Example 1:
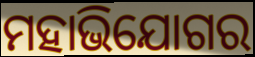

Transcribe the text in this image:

ମହାଭିଯୋଗର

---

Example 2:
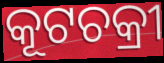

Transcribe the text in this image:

କୂଟଚକ୍ରୀ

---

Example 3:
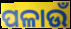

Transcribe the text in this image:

ପଳାଉଁ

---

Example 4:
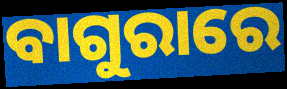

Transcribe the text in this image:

ବାଗୁରାରେ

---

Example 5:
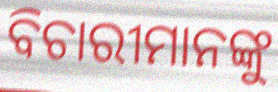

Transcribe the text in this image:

ବିଚାରୀମାନଙ୍କୁ